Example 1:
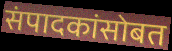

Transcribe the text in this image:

संपादकांसोबत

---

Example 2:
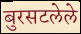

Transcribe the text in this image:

बुरसटलेले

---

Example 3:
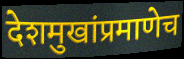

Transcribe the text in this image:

देशमुखांप्रमाणेच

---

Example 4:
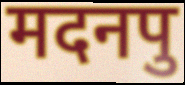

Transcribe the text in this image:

मदनपु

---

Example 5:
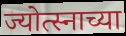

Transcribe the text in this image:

ज्योत्स्नाच्या